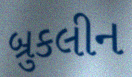
બ્રુકલીન